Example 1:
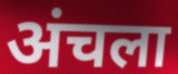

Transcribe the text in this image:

अंचला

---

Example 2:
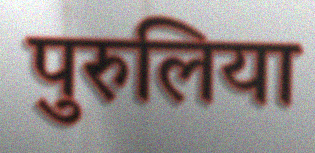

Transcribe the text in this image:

पुरुलिया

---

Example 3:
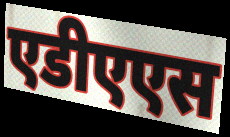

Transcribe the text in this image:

एडीएएस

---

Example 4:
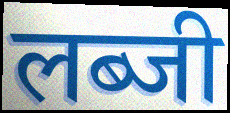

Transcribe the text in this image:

लब्जी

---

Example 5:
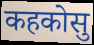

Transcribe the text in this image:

कहकोसु